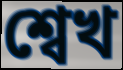
শ্বেখ